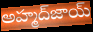
అహ్మద్‌జాయ్